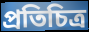
প্রতিচিত্র